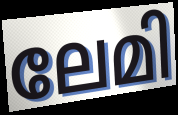
ലേമി